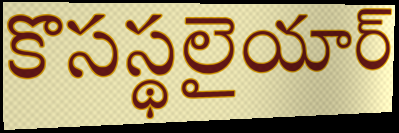
కొసస్థలైయార్